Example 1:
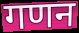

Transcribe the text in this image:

गणन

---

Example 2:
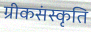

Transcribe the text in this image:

ग्रीकसंस्कृति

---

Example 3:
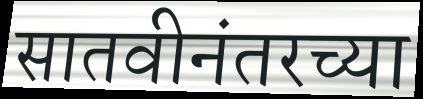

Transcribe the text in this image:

सातवीनंतरच्या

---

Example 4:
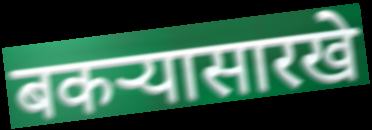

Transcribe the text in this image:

बकऱ्यासारखे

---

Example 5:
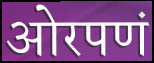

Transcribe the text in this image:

ओरपणं